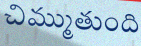
చిమ్ముతుంది